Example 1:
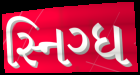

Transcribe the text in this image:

સ્નિગ્ધ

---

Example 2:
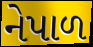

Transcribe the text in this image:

નેપાળ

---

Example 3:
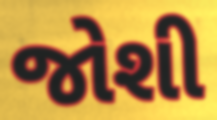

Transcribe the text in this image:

જોશી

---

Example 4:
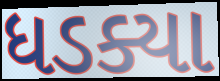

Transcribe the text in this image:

ધડક્યા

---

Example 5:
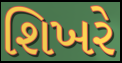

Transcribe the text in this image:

શિખરે